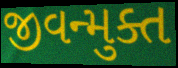
જીવન્મુક્ત